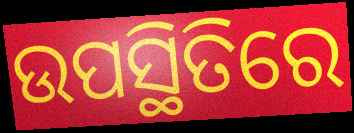
ଉପସ୍ଥିତିରେ